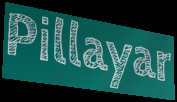
Pillayar